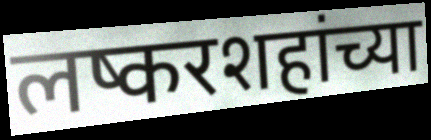
लष्करशहांच्या